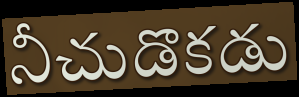
నీచుడొకడు